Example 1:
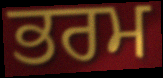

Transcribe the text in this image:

ਭਰਮ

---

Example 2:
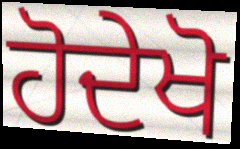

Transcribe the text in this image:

ਹੋਦੇਖੋ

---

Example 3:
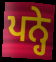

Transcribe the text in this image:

ਪਨ੍ਹੇ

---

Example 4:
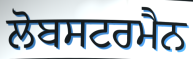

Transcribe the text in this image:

ਲੋਬਸਟਰਮੈਨ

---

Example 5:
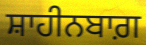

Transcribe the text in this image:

ਸ਼ਾਹੀਨਬਾਗ਼